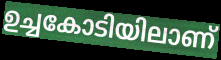
ഉച്ചകോടിയിലാണ്